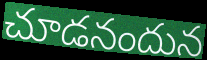
చూడనందున